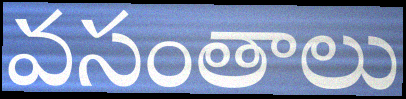
వసంతాలు